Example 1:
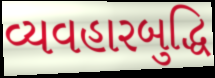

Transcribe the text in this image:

વ્યવહારબુદ્ધિ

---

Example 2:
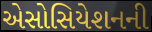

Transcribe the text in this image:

એસોસિયેશનની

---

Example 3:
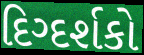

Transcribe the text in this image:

દિગ્દર્શકો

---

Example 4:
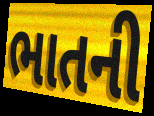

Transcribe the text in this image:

ભાતની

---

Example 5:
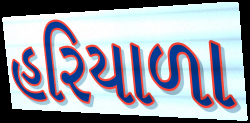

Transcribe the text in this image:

હરિયાળા